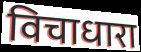
विचाधारा